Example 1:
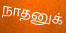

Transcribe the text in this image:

நாதனுக்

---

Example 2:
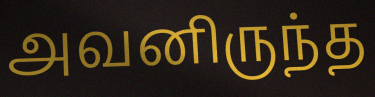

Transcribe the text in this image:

அவனிருந்த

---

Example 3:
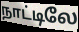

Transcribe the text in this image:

நாட்டிலே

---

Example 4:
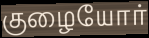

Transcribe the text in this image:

குழையோர்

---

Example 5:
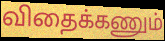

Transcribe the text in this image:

விதைக்கணும்